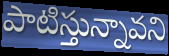
పాటిస్తున్నావని